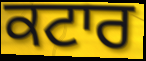
ਕਟਾਰ